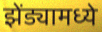
झेंड्यामध्ये